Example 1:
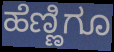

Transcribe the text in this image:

ಹೆಣ್ಣಿಗೂ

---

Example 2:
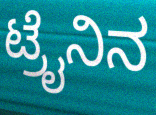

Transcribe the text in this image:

ಟ್ರೈನಿನ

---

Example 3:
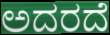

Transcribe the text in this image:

ಅದರದೆ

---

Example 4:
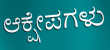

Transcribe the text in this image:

ಆಕ್ಷೇಪಗಳು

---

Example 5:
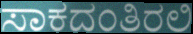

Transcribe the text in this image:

ಸಾಕದಂತಿರಲಿ